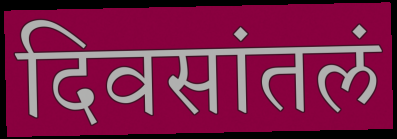
दिवसांतलं